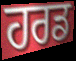
ਹਰਡ